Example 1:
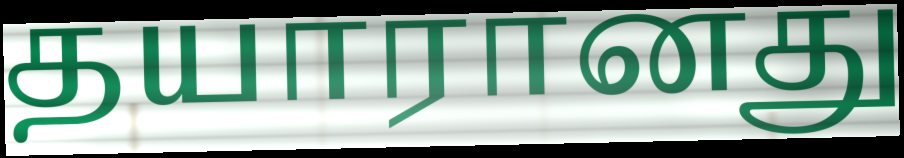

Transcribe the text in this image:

தயாரானது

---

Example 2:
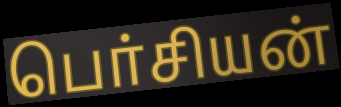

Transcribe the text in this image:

பெர்சியன்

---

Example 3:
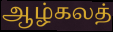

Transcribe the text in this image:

ஆழ்கலத்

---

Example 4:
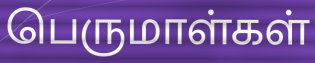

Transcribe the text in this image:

பெருமாள்கள்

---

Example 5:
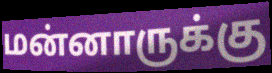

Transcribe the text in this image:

மன்னாருக்கு